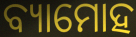
ବ୍ୟାମୋହ